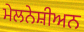
ਮੇਲਨੇਸ਼ੀਅਨ